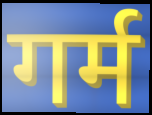
गर्म